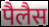
पैलैस